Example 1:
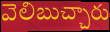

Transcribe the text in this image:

వెలిబుచ్చారు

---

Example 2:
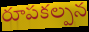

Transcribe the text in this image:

రూపకల్పన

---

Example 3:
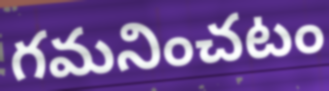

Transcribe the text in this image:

గమనించటం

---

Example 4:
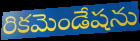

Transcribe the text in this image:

రికమెండేషను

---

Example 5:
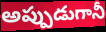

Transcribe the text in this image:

అప్పుడుగానీ